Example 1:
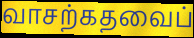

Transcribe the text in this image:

வாசற்கதவைப்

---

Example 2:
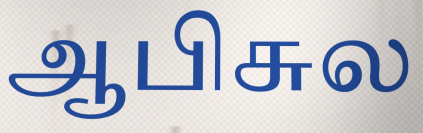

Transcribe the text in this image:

ஆபிசுல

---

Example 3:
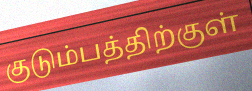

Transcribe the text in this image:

குடும்பத்திற்குள்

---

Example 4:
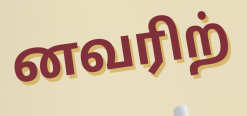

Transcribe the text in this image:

னவரிற்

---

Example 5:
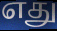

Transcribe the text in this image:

எது